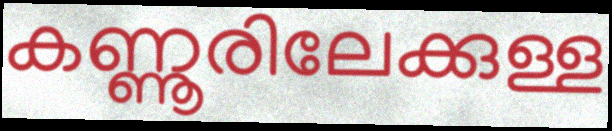
കണ്ണൂരിലേക്കുള്ള